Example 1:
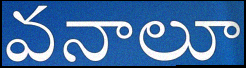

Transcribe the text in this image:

వనాలూ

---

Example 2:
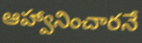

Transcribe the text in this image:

ఆహ్వానించారనే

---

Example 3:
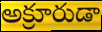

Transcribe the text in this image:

అక్రూరుడా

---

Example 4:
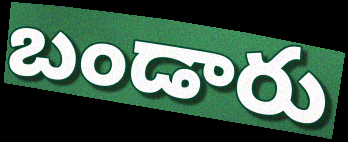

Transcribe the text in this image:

బండారు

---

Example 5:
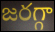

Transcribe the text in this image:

జరగ్గా